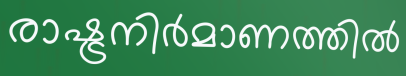
രാഷ്ട്രനിർമാണത്തിൽ